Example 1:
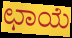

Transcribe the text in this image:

ಛಾಯೆ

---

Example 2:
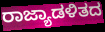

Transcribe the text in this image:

ರಾಜ್ಯಾಡಳಿತದ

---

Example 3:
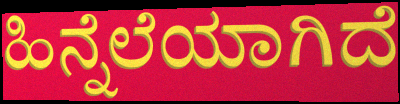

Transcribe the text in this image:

ಹಿನ್ನೆಲೆಯಾಗಿದೆ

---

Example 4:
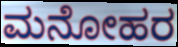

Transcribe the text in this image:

ಮನೋಹರ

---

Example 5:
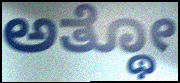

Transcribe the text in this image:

ಅತ್ಥೋ